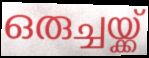
ഒരുച്ചയ്ക്ക്